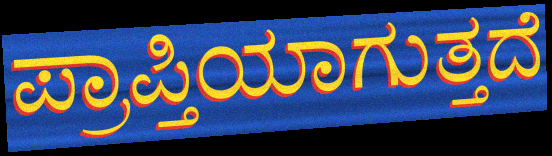
ಪ್ರಾಪ್ತಿಯಾಗುತ್ತದೆ